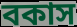
বকাস